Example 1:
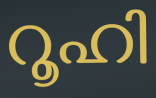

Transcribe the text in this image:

റൂഹി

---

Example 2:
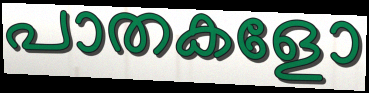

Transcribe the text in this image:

പാതകളോ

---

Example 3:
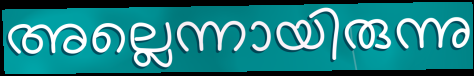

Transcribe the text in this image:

അല്ലെന്നായിരുന്നു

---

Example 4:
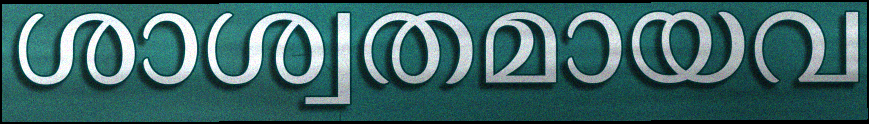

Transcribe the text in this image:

ശാശ്വതമായവ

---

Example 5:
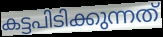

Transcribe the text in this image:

കട്ടപിടിക്കുന്നത്